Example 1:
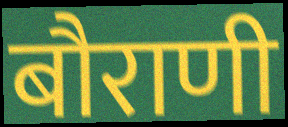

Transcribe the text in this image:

बौराणी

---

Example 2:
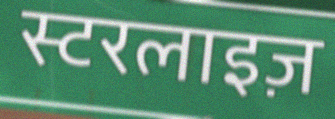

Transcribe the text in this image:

स्टरलाइज़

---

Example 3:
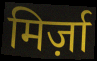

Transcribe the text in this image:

मिर्ज़ा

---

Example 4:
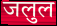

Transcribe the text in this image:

जलुल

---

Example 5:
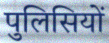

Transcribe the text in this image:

पुलिसियों